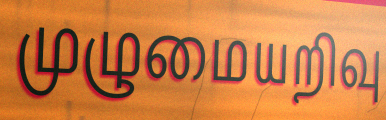
முழுமையறிவு